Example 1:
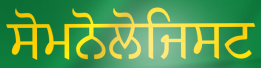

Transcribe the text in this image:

ਸੋਮਨੋਲੋਜਿਸਟ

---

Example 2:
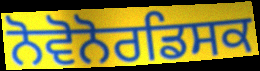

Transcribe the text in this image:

ਨੋਵੋਨੋਰਡਿਸਕ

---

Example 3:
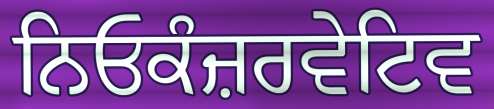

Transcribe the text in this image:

ਨਿਓਕੰਜ਼ਰਵੇਟਿਵ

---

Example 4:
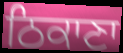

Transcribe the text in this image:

ਠਿਕਾਣਾ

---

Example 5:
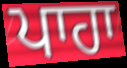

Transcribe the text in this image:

ਪਾਹਾ